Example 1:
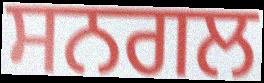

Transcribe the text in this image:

ਸਨਗਲ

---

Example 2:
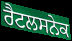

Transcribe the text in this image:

ਰੈਟਲਸਨੇਕ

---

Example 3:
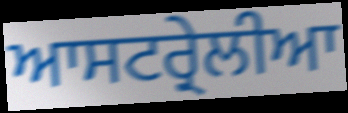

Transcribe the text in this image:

ਆਸਟਰ੍ਰੇਲੀਆ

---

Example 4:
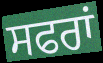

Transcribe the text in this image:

ਸਫਰਾਂ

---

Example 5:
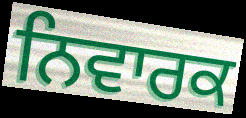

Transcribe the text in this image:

ਨਿਵਾਰਕ